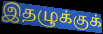
இதழுக்குக்